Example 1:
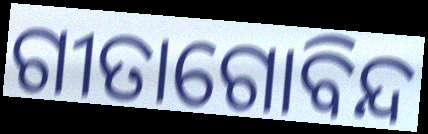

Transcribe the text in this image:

ଗୀତାଗୋବିନ୍ଦ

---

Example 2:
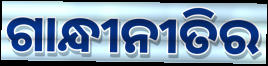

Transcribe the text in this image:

ଗାନ୍ଧୀନୀତିର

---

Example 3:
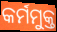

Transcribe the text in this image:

କର୍ମମୁକ୍ତ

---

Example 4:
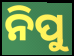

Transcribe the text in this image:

ନିପୁ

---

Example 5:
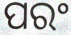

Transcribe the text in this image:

ପରଂ